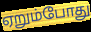
ஏறும்போது